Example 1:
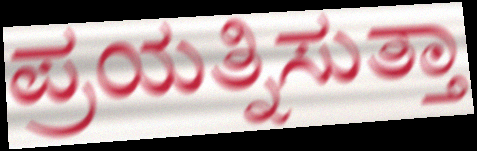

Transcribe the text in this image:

ಪ್ರಯತ್ನಿಸುತ್ತಾ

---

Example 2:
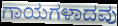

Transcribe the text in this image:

ಗಾಯಗಳಾದವು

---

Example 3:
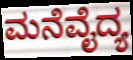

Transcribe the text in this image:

ಮನೆವೈದ್ಯ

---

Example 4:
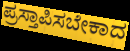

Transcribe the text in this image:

ಪ್ರಸ್ತಾಪಿಸಬೇಕಾದ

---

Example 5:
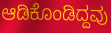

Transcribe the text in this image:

ಆಡಿಕೊಂಡಿದ್ದವು